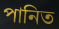
পানিত